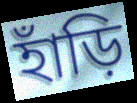
হাঁড়ি